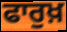
ਫਾਰੁਖ਼